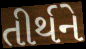
તીર્થને